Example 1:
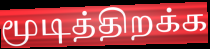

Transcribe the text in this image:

மூடித்திறக்க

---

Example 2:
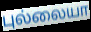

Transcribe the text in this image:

புல்லையா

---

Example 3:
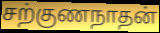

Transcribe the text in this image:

சற்குணநாதன்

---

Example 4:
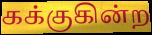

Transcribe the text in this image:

கக்குகின்ற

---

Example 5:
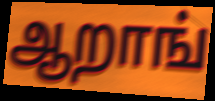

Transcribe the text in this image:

ஆறாங்